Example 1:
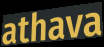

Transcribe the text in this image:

athava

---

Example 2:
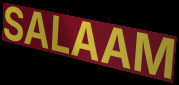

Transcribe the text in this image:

SALAAM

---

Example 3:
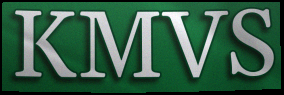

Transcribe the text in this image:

KMVS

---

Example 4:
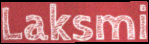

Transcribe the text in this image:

Laksmi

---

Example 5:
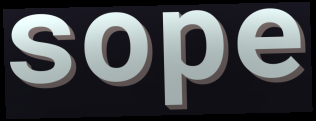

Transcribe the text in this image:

sope